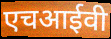
एचआईवी